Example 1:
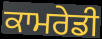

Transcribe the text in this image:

ਕਾਮਰੇਡੀ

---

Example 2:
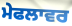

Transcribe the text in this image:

ਮੇਫਲਾਵਰ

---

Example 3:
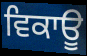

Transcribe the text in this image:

ਵਿਕਾਊ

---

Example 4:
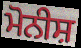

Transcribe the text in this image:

ਮੋਨੀਸ਼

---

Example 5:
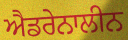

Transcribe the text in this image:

ਐਡਰੇਨਾਲੀਨ